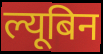
ल्यूबिन